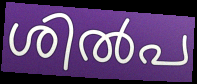
ശിൽപ